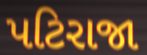
પટિરાજા